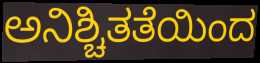
ಅನಿಶ್ಚಿತತೆಯಿಂದ